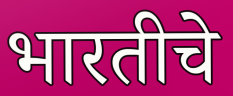
भारतीचे